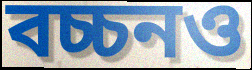
বচ্চনও